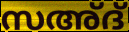
സഅ്ദ്